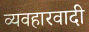
व्यवहारवादी